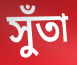
সুঁতা